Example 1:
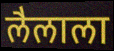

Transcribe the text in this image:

लैलाला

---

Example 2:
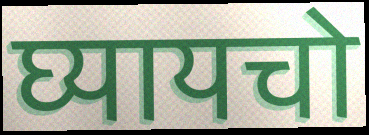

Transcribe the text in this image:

घ्यायचो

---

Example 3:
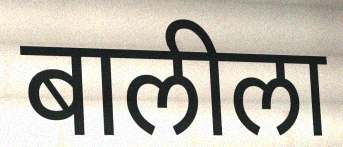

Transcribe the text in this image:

बालीला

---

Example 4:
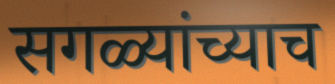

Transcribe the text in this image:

सगळ्यांच्याच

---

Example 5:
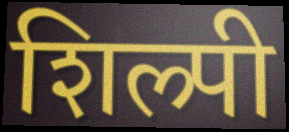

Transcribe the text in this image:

शिल्पी